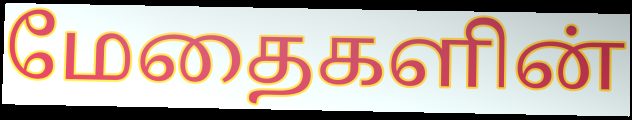
மேதைகளின்